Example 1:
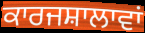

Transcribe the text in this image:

ਕਾਰਜਸ਼ਾਲਾਵਾਂ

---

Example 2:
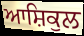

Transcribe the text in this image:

ਆਸ਼ਿਕੁਲ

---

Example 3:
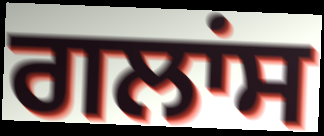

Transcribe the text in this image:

ਗਲਾਂਸ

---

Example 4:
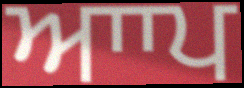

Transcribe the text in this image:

ਆਾਪ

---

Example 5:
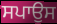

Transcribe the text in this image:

ਸਪਾਉਸ